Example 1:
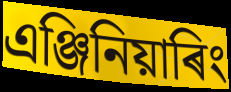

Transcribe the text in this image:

এঞ্জিনিয়াৰিং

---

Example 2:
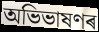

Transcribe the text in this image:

অভিভাষণৰ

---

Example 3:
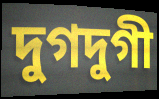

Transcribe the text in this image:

দুগদুগী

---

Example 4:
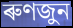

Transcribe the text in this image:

ৰুণজুন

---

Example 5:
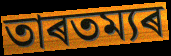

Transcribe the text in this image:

তাৰতম্যৰ